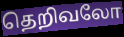
தெறிவலோ